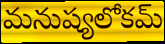
మనుష్యలోకమ్